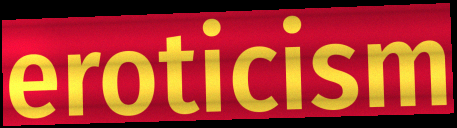
eroticism